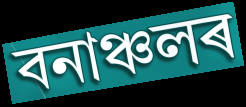
বনাঞ্চলৰ